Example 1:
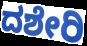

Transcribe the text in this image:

ದಶೇರಿ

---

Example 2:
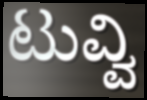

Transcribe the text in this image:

ಟುವ್ವಿ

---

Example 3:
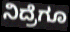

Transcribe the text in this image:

ನಿದ್ರೆಗೂ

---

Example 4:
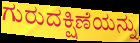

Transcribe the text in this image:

ಗುರುದಕ್ಷಿಣೆಯನ್ನು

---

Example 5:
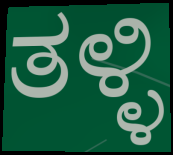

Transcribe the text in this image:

ತಳ್ಳಿ